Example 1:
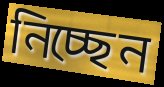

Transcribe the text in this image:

নিচ্ছেন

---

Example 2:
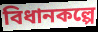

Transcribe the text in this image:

বিধানকল্পে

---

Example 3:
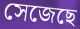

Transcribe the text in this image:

সেজেছে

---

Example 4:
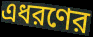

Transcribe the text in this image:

এধরণের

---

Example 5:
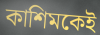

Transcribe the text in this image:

কাশিমকেই